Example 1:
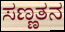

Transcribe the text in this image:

ಸಣ್ಣತನ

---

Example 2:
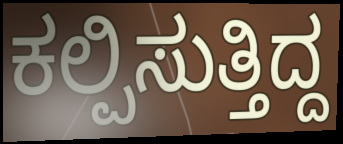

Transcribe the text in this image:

ಕಲ್ಪಿಸುತ್ತಿದ್ದ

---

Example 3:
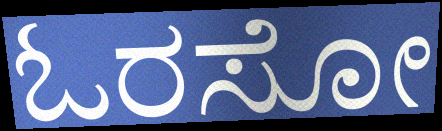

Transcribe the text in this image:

ಓರಸೋ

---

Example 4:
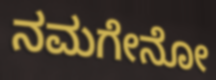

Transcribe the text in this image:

ನಮಗೇನೋ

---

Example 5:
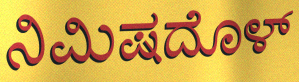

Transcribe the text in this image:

ನಿಮಿಷದೊಳ್